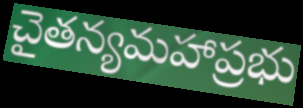
చైతన్యమహాప్రభు